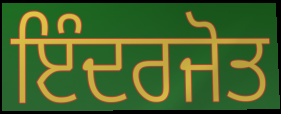
ਇੰਦਰਜੋਤ